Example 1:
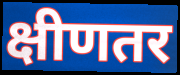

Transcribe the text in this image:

क्षीणतर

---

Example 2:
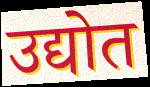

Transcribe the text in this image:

उद्योत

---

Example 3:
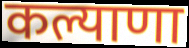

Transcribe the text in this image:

कल्याणा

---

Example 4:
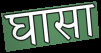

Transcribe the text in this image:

घासा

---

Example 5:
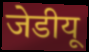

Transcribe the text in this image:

जेडीयू